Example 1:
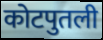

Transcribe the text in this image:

कोटपुतली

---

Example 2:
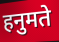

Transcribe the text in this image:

हनुमते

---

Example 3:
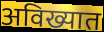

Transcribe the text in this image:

अविख्यात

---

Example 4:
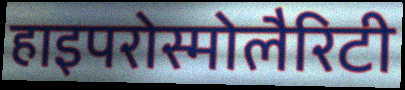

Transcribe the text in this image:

हाइपरोस्मोलैरिटी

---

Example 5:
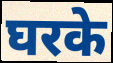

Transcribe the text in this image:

घरके